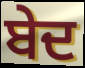
ਬੇਦ